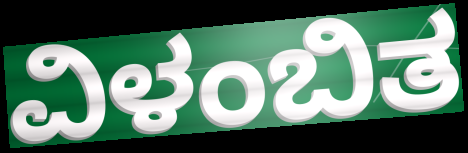
ವಿಳಂಬಿತ